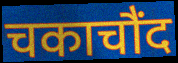
चकाचौंद